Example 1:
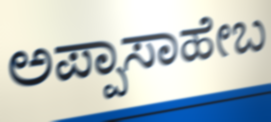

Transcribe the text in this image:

ಅಪ್ಪಾಸಾಹೇಬ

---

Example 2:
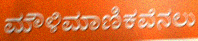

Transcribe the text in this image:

ಮೌಳಿಮಾಣಿಕವೆನಲು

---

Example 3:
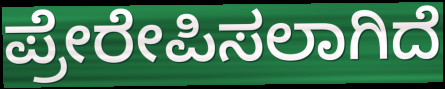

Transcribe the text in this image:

ಪ್ರೇರೇಪಿಸಲಾಗಿದೆ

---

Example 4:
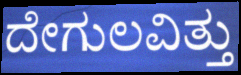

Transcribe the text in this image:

ದೇಗುಲವಿತ್ತು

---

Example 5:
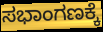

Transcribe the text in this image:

ಸಭಾಂಗಣಕ್ಕೆ